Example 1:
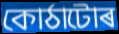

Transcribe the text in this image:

কোঠাটোৰ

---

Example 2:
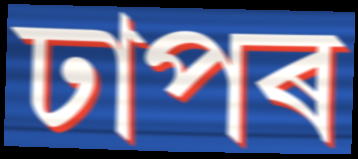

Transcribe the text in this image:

ঢাপৰ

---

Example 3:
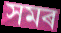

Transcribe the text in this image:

সমৰ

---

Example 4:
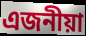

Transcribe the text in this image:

এজনীয়া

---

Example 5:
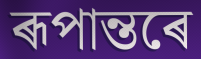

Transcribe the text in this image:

ৰূপান্তৰে